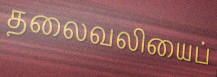
தலைவலியைப்